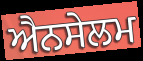
ਐਨਸੇਲਮ